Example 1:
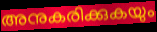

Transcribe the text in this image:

അനുകരിക്കുകയും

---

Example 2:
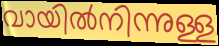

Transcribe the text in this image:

വായിൽനിന്നുള്ള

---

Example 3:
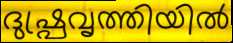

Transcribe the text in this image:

ദുഷ്പ്രവൃത്തിയിൽ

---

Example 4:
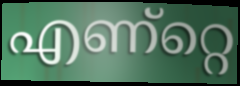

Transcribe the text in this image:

എണ്റ്റെ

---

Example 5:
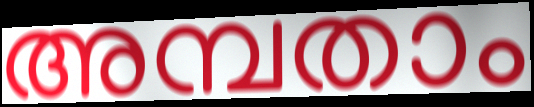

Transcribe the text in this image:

അമ്പതാം